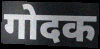
गोदक